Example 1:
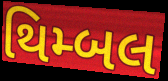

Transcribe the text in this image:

થિમ્બલ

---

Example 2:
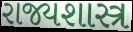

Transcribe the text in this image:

રાજ્યશાસ્ત્ર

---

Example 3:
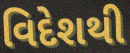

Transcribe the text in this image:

વિદેશથી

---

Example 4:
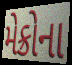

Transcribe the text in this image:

મેક્રોના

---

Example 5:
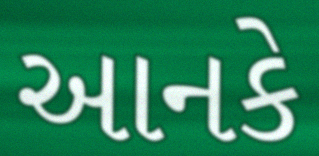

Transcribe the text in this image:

આનકે